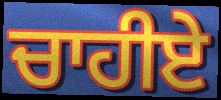
ਚਾਹੀਏ